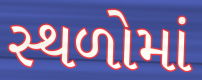
સ્‍થળોમાં